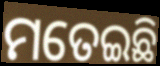
ମତେଇଛି